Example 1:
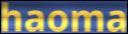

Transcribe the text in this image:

haoma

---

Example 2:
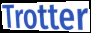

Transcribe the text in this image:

Trotter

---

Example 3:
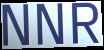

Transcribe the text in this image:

NNR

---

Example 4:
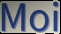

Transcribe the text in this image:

Moi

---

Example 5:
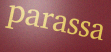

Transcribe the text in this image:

parassa